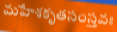
మహేశకృతసంస్తవః